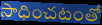
సాధించటంతో